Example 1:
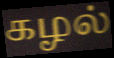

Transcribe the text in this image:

கழல்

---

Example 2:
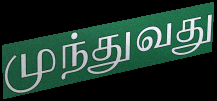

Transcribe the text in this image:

முந்துவது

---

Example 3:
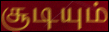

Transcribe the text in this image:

சூடியும்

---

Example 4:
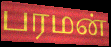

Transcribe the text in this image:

பரமன்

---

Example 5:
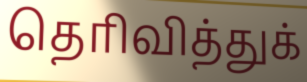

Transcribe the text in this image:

தெரிவித்துக்